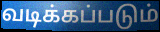
வடிக்கப்படும்